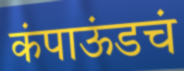
कंपाऊंडचं